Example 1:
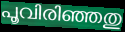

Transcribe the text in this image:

പൂവിരിഞ്ഞതു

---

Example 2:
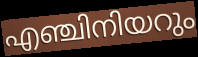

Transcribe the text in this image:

എഞ്ചിനിയറും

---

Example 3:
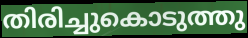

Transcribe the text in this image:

തിരിച്ചുകൊടുത്തു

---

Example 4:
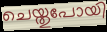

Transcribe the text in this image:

ചെയ്തുപോയി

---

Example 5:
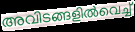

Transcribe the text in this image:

അവിടങ്ങളിൽവെച്ച്